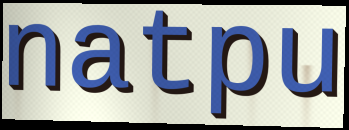
natpu